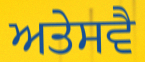
ਅਤੇਸਵੈ